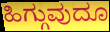
ಹಿಗ್ಗುವುದೂ